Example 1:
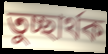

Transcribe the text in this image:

তুচ্ছার্থক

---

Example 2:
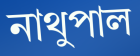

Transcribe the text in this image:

নাথুপাল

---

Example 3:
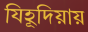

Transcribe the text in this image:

যিহূদিয়ায়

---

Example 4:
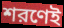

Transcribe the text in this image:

শরণেই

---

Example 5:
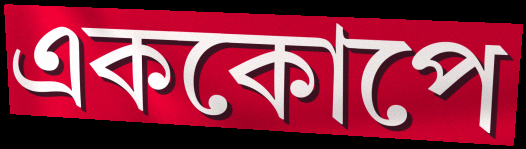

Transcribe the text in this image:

এককোপে